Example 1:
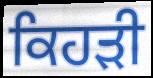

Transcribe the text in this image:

ਕਿਹੜੀ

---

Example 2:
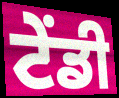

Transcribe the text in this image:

ਟੇਂਡੀ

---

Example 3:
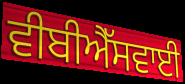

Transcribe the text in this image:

ਵੀਬੀਐੱਸਵਾਈ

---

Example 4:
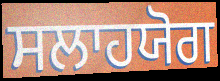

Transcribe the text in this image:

ਸਲਾਹਯੋਗ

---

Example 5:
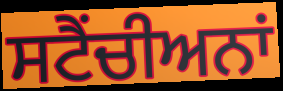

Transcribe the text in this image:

ਸਟੈਂਚੀਅਨਾਂ